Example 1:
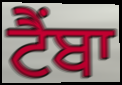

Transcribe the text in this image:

ਟੈਂਬਾ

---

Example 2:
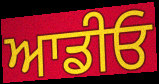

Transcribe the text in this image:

ਆਡੀਓ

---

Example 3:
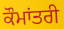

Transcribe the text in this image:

ਕੌਮਾਂਤਰੀ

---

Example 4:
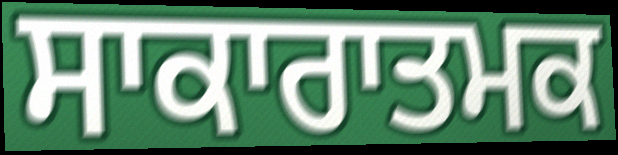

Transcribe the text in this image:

ਸਾਕਾਰਾਤਮਕ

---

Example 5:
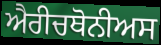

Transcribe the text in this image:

ਐਰੀਚਥੋਨੀਅਸ